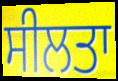
ਸੀਲਤਾ